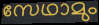
സേഥാമും